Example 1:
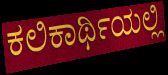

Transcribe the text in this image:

ಕಲಿಕಾರ್ಥಿಯಲ್ಲಿ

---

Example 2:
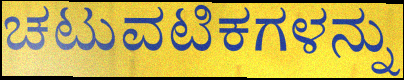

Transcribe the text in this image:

ಚಟುವಟಿಕಗಳನ್ನು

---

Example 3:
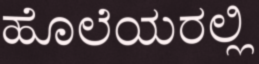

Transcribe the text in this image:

ಹೊಲೆಯರಲ್ಲಿ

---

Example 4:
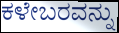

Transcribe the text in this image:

ಕಳೇಬರವನ್ನು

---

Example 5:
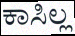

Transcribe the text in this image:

ಕಾಸಿಲ್ಲ